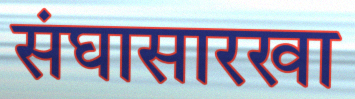
संघासारखा